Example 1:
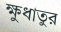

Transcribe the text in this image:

ক্ষুধাতুর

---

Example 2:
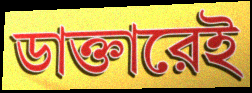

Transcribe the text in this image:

ডাক্তারেই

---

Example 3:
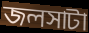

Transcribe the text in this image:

জলসাটা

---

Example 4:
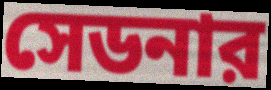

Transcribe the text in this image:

সেডনার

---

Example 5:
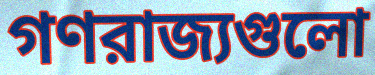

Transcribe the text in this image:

গণরাজ্যগুলো